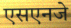
एसएनजे